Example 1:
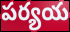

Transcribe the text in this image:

పర్యయ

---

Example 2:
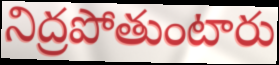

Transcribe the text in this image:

నిద్రపోతుంటారు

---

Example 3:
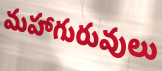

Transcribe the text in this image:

మహాగురువులు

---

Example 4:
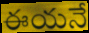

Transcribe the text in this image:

ఈయనే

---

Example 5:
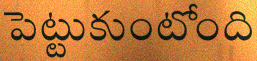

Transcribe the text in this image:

పెట్టుకుంటోంది